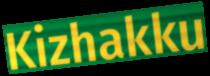
Kizhakku